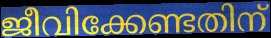
ജീവിക്കേണ്ടതിന്